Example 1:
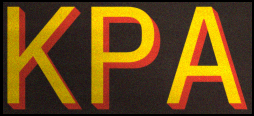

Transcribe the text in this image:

KPA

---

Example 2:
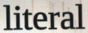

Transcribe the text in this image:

literal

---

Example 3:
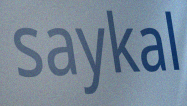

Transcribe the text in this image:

saykal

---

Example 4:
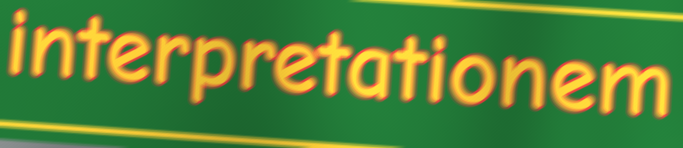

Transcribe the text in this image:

interpretationem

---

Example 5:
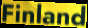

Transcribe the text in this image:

Finland